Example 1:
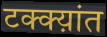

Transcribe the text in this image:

टक्क्य़ांत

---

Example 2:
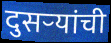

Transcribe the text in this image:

दुसऱ्यांची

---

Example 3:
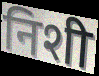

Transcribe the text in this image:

निशी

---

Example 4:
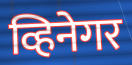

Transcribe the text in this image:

व्हिनेगर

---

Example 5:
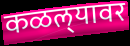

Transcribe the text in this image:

कळल्यावर